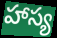
హాస్య